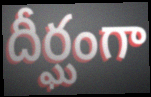
దీర్ఘంగా